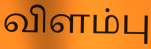
விளம்பு